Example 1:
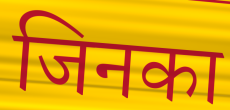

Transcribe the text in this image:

जिनका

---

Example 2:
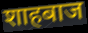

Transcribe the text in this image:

शाहबाज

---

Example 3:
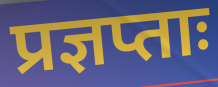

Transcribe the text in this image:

प्रज्ञप्ताः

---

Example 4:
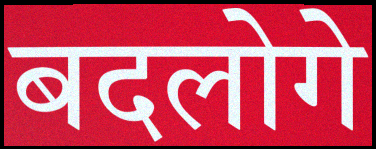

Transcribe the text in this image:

बदलोगे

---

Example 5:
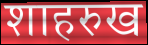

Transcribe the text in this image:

शाहरुख